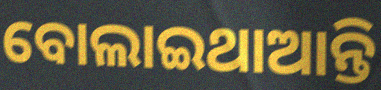
ବୋଲାଇଥାଆନ୍ତି